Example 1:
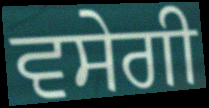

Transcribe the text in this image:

ਵਸੇਗੀ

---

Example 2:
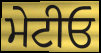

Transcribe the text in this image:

ਮੇਟੀਓ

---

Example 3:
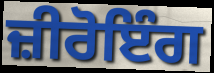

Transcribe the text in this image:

ਜ਼ੀਰੋਇੰਗ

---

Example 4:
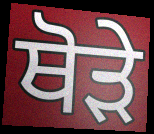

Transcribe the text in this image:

ਥੋਡ਼ੇ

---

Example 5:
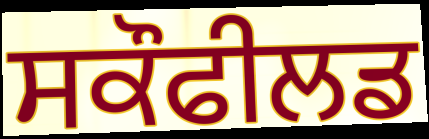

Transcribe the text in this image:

ਸਕੌਫੀਲਡ